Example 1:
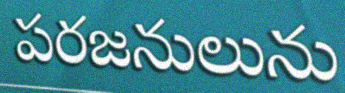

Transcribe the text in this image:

పరజనులును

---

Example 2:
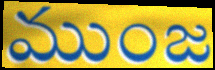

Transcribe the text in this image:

ముంజ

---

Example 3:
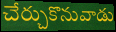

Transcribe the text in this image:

చేర్చుకొనువాడు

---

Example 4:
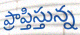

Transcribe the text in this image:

ప్రాప్తిస్తున్న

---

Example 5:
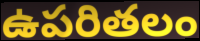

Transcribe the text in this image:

ఉపరితలం